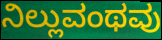
ನಿಲ್ಲುವಂಥವು